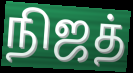
நிஜத்